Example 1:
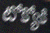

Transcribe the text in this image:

టోక్యోకి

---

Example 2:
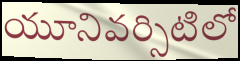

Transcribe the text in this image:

యూనివర్సిటిలో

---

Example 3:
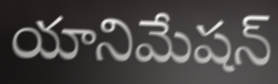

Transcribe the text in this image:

యానిమేషన్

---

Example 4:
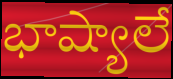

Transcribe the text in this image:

భాష్యాలే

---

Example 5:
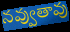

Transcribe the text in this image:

నవ్వుతావు